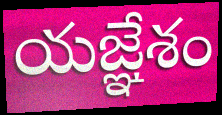
యజ్ఞేశం